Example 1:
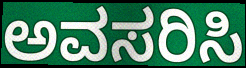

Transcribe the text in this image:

ಅವಸರಿಸಿ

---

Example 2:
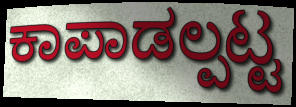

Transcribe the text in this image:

ಕಾಪಾಡಲ್ಪಟ್ಟ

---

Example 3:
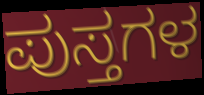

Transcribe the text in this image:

ಪುಸ್ತಗಳ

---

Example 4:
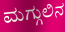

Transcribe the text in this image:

ಮಗ್ಗುಲಿನ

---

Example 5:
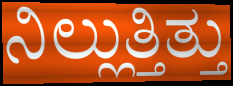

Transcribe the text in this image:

ನಿಲ್ಲುತ್ತಿತ್ತು